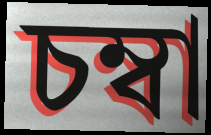
চম্বা